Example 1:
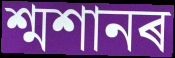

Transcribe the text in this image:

শ্মশানৰ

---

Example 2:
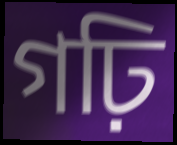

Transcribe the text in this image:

গঢ়ি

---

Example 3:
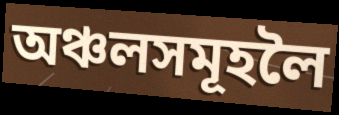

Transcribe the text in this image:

অঞ্চলসমূহলৈ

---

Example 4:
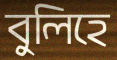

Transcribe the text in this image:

বুলিহে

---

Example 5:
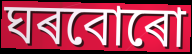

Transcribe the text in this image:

ঘৰবোৰো